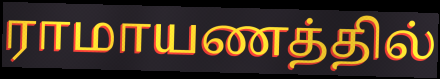
ராமாயணத்தில்